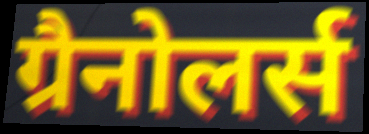
ग्रैनोलर्स